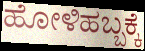
ಹೋಳಿಹಬ್ಬಕ್ಕೆ